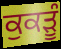
ਕੁਕੜੂੰ